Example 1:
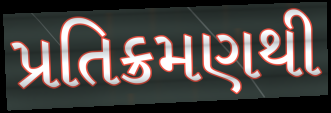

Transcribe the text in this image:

પ્રતિક્રમણથી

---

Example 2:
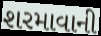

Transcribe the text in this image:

શરમાવાની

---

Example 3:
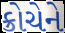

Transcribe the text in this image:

ક્રોચેને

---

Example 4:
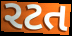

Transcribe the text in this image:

રટત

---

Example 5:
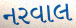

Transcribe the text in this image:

નરવાલ